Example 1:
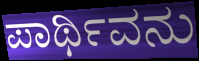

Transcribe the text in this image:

ಪಾರ್ಥಿವನು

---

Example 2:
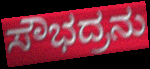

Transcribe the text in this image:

ಸೌಭದ್ರನು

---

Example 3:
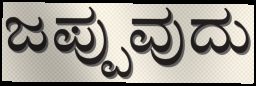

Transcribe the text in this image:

ಜಪ್ಪುವುದು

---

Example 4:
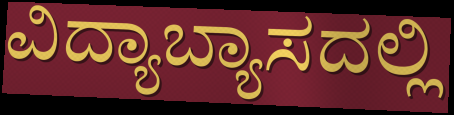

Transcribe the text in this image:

ವಿದ್ಯಾಬ್ಯಾಸದಲ್ಲಿ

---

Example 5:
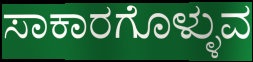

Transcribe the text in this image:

ಸಾಕಾರಗೊಳ್ಳುವ